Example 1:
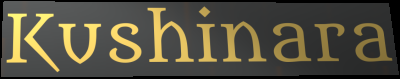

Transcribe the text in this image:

Kushinara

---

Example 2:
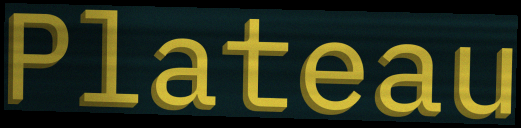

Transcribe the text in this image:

Plateau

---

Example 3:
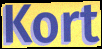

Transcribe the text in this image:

Kort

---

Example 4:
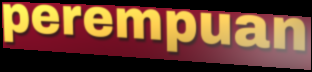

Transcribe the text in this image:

perempuan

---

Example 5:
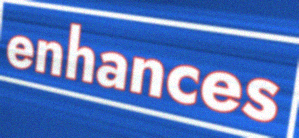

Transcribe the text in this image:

enhances